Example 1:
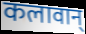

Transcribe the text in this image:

कलावान्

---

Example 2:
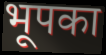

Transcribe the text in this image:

भूपका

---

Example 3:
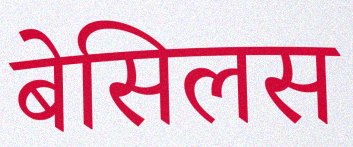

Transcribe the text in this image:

बेसिलस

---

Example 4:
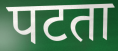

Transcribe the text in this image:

पटता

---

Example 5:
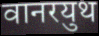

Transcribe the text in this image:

वानरयुथ